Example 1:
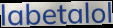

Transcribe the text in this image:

labetalol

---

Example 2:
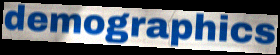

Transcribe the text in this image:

demographics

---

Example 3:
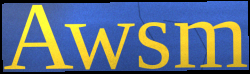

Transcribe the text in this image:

Awsm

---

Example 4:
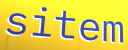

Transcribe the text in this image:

sitem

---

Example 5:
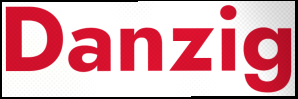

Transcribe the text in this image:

Danzig